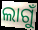
ଲାଗୁଁ